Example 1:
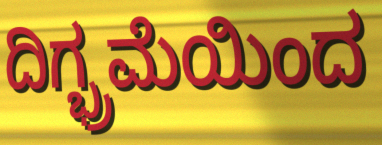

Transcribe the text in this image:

ದಿಗ್ಭ್ರಮೆಯಿಂದ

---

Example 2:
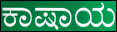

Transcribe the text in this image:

ಕಾಷಾಯ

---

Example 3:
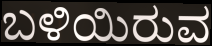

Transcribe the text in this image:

ಬಳಿಯಿರುವ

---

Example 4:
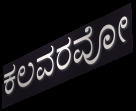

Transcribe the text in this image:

ಕಲವರವೋ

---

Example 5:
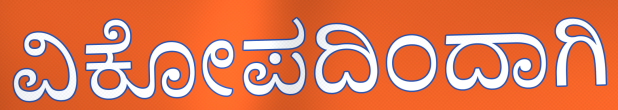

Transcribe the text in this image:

ವಿಕೋಪದಿಂದಾಗಿ